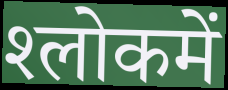
श्‍लोकमें